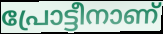
പ്രോട്ടീനാണ്